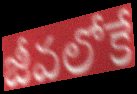
జీవలోకే